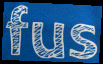
fus